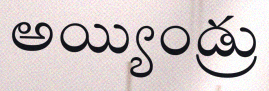
అయ్యిండ్రు